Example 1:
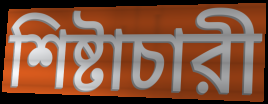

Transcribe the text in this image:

শিষ্টাচারী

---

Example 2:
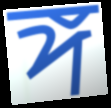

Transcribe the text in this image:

ঙ্গ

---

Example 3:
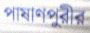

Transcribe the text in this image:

পাষাণপুরীর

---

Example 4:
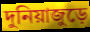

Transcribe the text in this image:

দুনিয়াজুড়ে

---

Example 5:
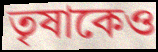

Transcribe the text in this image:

তৃষাকেও